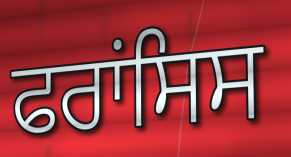
ਫਰਾਂਸਿਸ